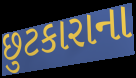
છુટકારાના